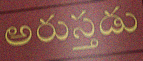
అరుస్తడు